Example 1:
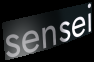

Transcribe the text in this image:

sensei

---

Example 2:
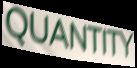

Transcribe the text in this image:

QUANTITY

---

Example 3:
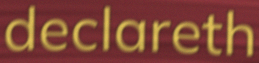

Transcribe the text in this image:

declareth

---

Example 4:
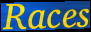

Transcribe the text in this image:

Races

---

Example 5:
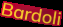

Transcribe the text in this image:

Bardoli